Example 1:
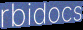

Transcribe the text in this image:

rbidocs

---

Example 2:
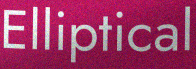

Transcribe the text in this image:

Elliptical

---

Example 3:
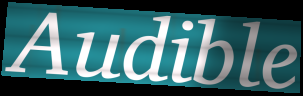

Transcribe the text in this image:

Audible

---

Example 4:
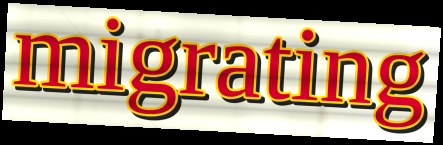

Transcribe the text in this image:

migrating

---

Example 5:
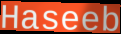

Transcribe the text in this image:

Haseeb